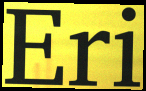
Eri